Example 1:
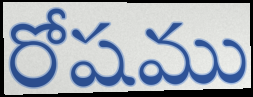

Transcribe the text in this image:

రోషము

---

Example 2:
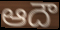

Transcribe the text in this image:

ఆదౌ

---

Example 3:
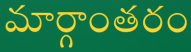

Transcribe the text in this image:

మార్గాంతరం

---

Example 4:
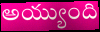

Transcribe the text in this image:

అయ్యుంది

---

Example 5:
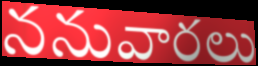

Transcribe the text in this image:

ననువారలు